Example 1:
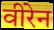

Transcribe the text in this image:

वीरेन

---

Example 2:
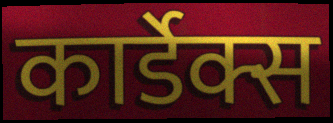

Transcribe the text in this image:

कार्डेक्स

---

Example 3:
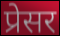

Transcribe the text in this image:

प्रेसर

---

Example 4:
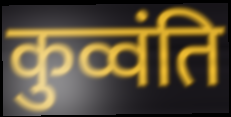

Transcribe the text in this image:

कुव्वंति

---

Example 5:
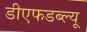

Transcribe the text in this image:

डीएफडब्ल्यू